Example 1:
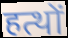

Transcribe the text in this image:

हत्थों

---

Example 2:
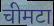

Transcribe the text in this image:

चीमटा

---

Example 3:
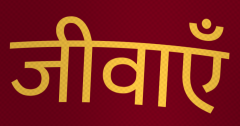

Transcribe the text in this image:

जीवाएँ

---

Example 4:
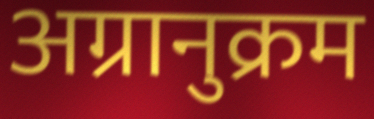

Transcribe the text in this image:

अग्रानुक्रम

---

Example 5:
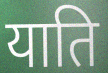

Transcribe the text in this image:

याति